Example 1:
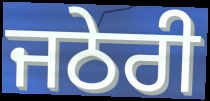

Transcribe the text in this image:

ਜਠੇਰੀ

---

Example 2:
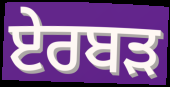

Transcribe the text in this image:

ਏਰਬੜ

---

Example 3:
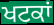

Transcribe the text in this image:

ਖਟਕਾਂ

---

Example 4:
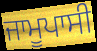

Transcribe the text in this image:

ਜਾਮੂਪਾਸੀ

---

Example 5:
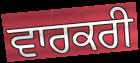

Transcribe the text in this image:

ਵਾਰਕਰੀ